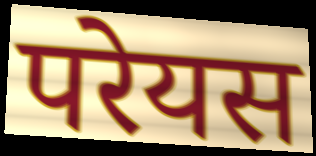
परेयस